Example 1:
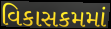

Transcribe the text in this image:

વિકાસકમમાં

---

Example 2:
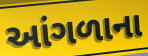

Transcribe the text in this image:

આંગળાના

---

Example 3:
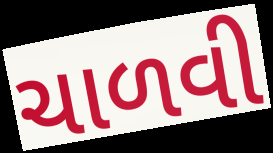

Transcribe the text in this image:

ચાળવી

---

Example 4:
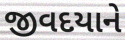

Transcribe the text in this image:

જીવદયાને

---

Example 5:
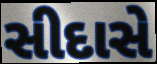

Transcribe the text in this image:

સીદાસે